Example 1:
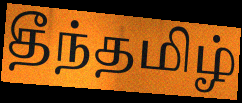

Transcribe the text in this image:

தீந்தமிழ்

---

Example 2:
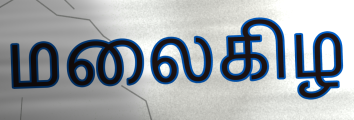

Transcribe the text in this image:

மலைகிழ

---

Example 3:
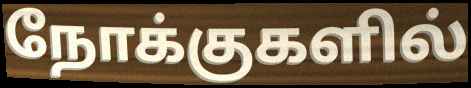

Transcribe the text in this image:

நோக்குகளில்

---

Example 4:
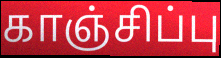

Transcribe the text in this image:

காஞ்சிப்பு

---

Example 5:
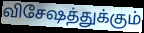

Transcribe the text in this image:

விசேஷத்துக்கும்